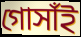
গোসাঁই